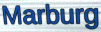
Marburg